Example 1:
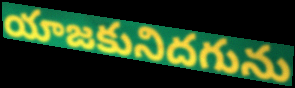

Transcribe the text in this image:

యాజకునిదగును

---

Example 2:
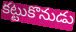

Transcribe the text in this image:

కట్టుకొనుడు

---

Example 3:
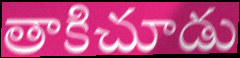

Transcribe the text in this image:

తాకిచూడు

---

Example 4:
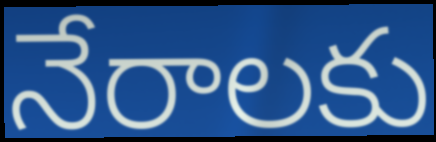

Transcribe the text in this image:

నేరాలకు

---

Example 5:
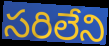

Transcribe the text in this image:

సరిలేని